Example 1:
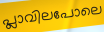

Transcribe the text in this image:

പ്ലാവിലപോലെ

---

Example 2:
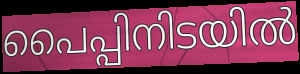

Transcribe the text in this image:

പൈപ്പിനിടയിൽ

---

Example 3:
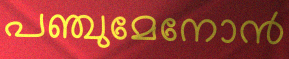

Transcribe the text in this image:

പഞ്ചുമേനോൻ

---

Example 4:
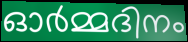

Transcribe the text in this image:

ഓർമ്മദിനം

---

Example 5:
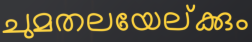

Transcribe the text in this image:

ചുമതലയേല്ക്കും